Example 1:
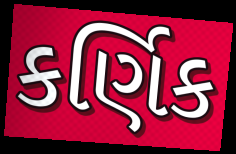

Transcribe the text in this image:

કર્ણિક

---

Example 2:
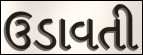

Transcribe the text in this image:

ઉડાવતી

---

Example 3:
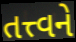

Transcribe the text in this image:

તત્ત્વને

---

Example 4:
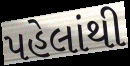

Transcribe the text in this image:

પહેલાંથી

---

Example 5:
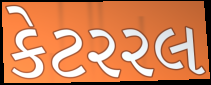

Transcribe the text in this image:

કેટરરલ